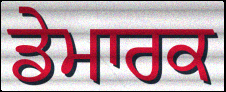
ਡੇਮਾਰਕ